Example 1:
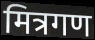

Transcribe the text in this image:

मित्रगण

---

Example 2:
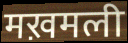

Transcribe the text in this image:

मख़मली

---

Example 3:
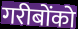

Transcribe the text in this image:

गरीबोंको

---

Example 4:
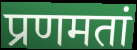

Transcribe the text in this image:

प्रणमतां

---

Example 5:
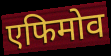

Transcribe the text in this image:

एफिमोव